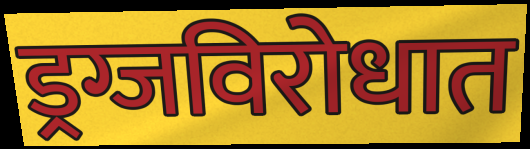
ड्रग्जविरोधात